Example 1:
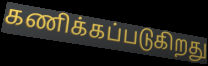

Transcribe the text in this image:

கணிக்கப்படுகிறது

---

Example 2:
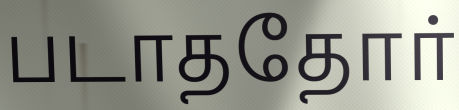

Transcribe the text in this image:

படாததோர்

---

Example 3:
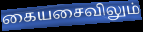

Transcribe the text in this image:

கையசைவிலும்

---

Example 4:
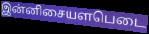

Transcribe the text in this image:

இன்னிசையளபெடை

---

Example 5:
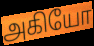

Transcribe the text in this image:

அகியோ